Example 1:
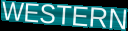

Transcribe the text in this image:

WESTERN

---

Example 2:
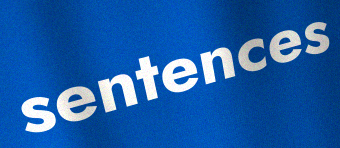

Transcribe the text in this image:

sentences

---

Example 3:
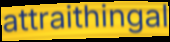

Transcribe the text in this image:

attraithingal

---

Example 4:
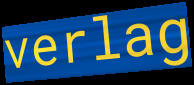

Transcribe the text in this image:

verlag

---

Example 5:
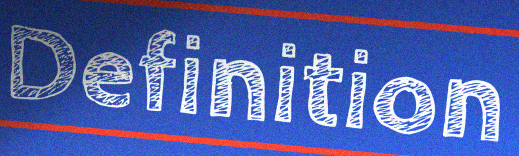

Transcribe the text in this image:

Definition